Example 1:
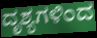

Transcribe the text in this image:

ದೃಶ್ಯಗಳಿಂದ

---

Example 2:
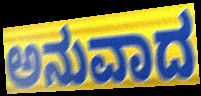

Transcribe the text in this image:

ಅನುವಾದ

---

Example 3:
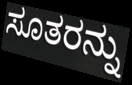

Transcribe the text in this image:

ಸೂತರನ್ನು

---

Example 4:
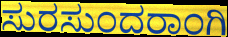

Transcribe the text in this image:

ಸುರಸುಂದರಾಂಗಿ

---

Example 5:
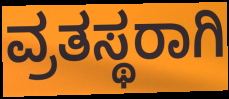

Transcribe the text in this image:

ವ್ರತಸ್ಥರಾಗಿ